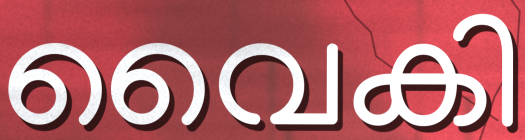
വൈകി